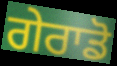
ਗੇਰਾਡੋ